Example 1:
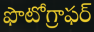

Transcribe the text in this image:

ఫొటోగ్రాఫర్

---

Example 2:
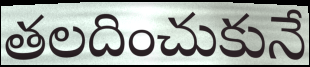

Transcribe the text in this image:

తలదించుకునే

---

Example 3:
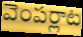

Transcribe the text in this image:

వెంపర్లాట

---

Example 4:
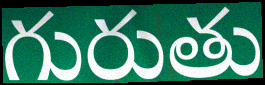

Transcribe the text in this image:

గురుతు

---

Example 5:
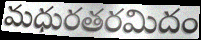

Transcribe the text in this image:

మధురతరమిదం